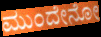
ಮುಂದೇನೋ